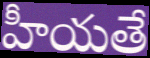
హీయతే